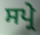
ਸਪ੍ਰੇ